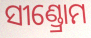
ସୀଣ୍ଡ୍ରୋମ